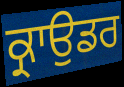
ਕ੍ਰਾਉਡਰ